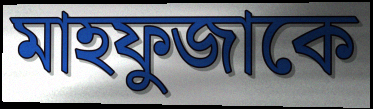
মাহফুজাকে